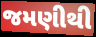
જમણીથી